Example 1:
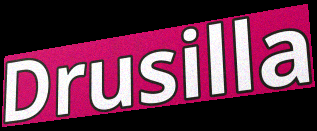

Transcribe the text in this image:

Drusilla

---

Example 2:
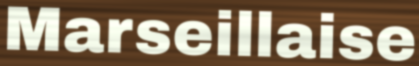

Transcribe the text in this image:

Marseillaise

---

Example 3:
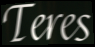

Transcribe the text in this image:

Teres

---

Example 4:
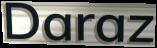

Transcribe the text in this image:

Daraz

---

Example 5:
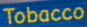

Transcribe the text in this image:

Tobacco